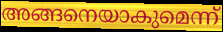
അങ്ങനെയാകുമെന്ന്